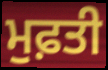
ਮੁਫ਼ਤੀ